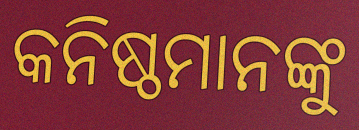
କନିଷ୍ଠମାନଙ୍କୁ